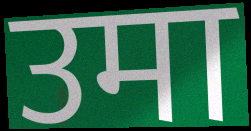
उमा